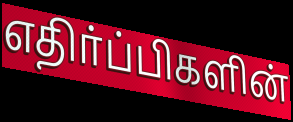
எதிர்ப்பிகளின்